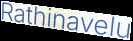
Rathinavelu